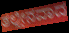
ತಲ್ಲೀನವಾದ